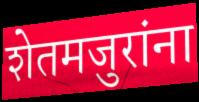
शेतमजुरांना